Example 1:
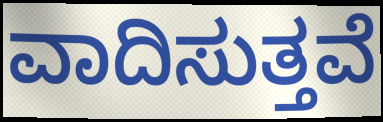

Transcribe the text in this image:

ವಾದಿಸುತ್ತವೆ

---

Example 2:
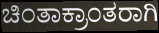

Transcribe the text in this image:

ಚಿಂತಾಕ್ರಾಂತರಾಗಿ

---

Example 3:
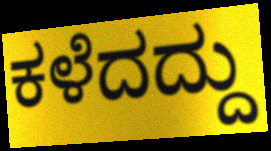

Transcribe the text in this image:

ಕಳೆದದ್ದು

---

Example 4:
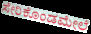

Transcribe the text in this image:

ಸೇರಿಕೊಂಡಮೇಲೆ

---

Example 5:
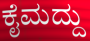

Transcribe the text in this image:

ಕೈಮದ್ದು